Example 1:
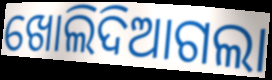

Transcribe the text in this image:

ଖୋଲିଦିଆଗଲା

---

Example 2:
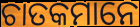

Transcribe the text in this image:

ଚାତକମାନେ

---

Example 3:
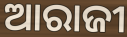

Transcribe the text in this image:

ଆରାଜୀ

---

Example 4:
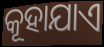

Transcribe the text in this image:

କୂହାଯାଏ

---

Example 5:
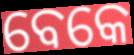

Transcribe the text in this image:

ବେକେ